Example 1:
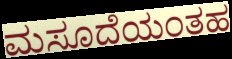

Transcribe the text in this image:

ಮಸೂದೆಯಂತಹ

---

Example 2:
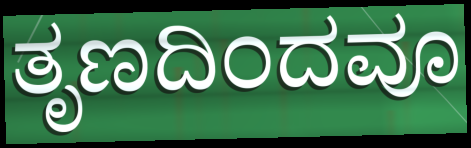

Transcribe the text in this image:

ತೃಣದಿಂದವೂ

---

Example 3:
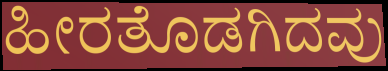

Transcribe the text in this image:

ಹೀರತೊಡಗಿದವು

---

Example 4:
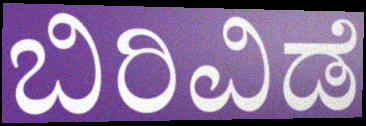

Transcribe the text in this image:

ಬಿರಿವಿಡೆ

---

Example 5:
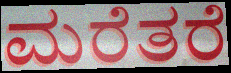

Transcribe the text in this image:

ಮರೆತರೆ